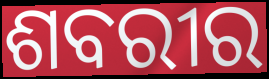
ଶବରୀର